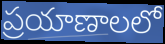
ప్రయాణాలలో